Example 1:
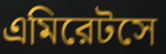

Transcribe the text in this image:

এমিরেটসে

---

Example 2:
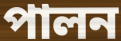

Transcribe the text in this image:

পালন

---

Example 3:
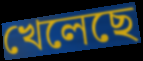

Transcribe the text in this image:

খেলেছে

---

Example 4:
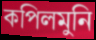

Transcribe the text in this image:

কপিলমুনি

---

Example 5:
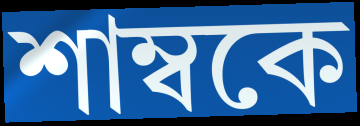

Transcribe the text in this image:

শাম্বকে